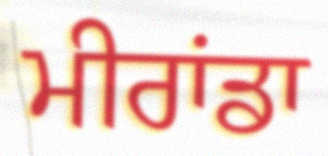
ਮੀਰਾਂਡਾ